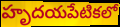
హృదయపేటికలో